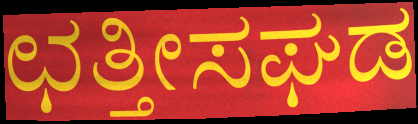
ಛತ್ತೀಸಘಡ